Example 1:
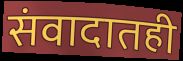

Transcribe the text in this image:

संवादातही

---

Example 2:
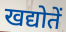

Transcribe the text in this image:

खद्योतें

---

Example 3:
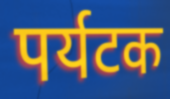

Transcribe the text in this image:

पर्यटक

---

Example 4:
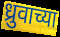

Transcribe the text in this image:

ध्रुवाच्या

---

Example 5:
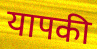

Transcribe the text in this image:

यापकी